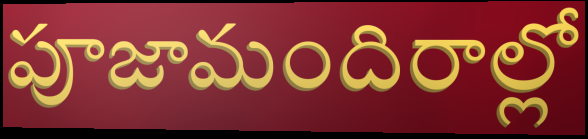
పూజామందిరాల్లో